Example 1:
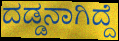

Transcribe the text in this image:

ದಡ್ಡನಾಗಿದ್ದೆ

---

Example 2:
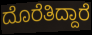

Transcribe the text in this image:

ದೊರೆತಿದ್ದಾರೆ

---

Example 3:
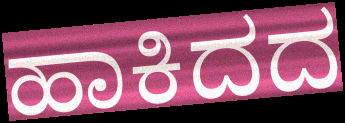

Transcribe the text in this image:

ಹಾಕಿದದ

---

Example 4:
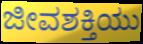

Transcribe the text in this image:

ಜೀವಶಕ್ತಿಯು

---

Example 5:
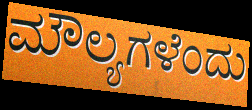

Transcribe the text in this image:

ಮೌಲ್ಯಗಳೆಂದು